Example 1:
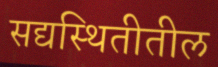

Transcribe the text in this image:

सद्यस्थितीतील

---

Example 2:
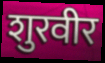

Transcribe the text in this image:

शुरवीर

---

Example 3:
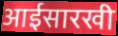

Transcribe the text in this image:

आईसारखी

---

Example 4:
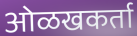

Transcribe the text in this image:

ओळखकर्ता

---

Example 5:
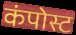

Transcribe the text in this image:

कंपोस्ट